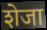
शेजा